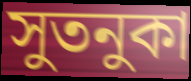
সুতনুকা